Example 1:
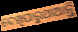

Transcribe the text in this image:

ଦେଖିପାରୁଥାଆନ୍ତି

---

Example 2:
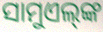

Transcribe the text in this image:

ସାମୁଏଲ୍‌ଙ୍କ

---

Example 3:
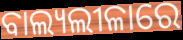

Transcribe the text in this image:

ବାଲ୍ୟଲୀଳାରେ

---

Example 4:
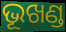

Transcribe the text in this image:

ଭୂଖଣ୍ଡ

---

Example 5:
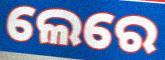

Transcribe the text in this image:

ଲେରେ